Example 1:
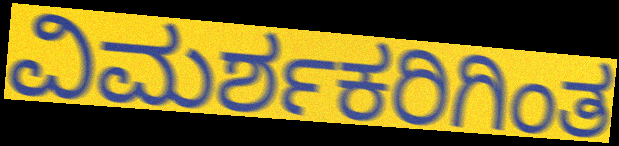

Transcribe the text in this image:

ವಿಮರ್ಶಕರಿಗಿಂತ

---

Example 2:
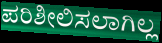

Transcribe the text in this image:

ಪರಿಶೀಲಿಸಲಾಗಿಲ್ಲ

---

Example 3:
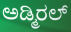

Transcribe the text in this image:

ಅಡ್ಮಿರಲ್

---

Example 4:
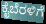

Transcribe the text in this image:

ಕೈಬೆರಳಿಗೆ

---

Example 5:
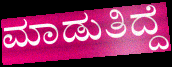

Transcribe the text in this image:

ಮಾಡುತಿದ್ದೆ